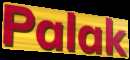
Palak